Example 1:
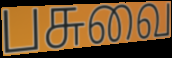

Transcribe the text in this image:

பசுவை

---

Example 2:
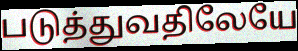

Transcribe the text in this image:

படுத்துவதிலேயே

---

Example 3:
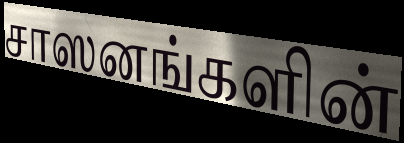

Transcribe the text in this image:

சாஸனங்களின்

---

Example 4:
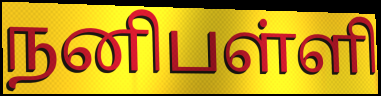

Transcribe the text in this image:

நனிபள்ளி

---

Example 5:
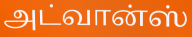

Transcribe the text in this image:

அட்வான்ஸ்